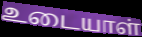
உடையாள்